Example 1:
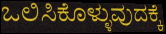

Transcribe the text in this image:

ಒಲಿಸಿಕೊಳ್ಳುವುದಕ್ಕೆ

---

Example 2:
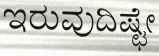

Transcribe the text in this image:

ಇರುವುದಿಷ್ಟೇ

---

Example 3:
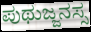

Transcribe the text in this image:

ಪುಥುಜ್ಜನಸ್ಸ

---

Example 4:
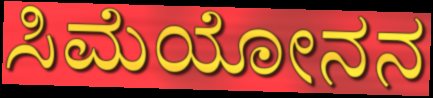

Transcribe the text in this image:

ಸಿಮೆಯೋನನ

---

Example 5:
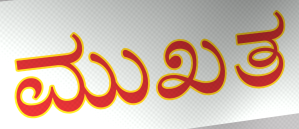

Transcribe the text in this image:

ಮುಖತ